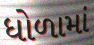
ધોળામાં